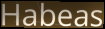
Habeas